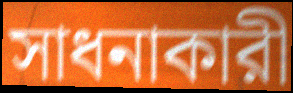
সাধনাকারী